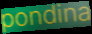
pondina